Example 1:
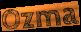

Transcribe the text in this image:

Ozma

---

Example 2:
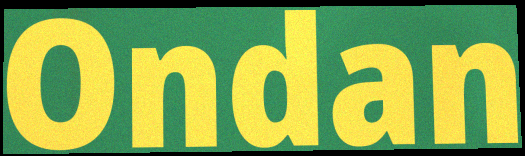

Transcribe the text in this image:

Ondan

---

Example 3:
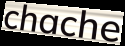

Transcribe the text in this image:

chache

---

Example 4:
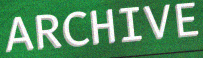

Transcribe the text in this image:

ARCHIVE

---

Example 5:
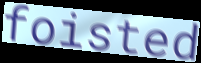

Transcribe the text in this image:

foisted